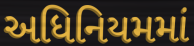
અધિનિયમમાં